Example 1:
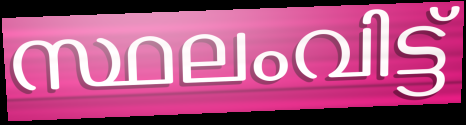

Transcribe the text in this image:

സ്ഥലംവിട്ട്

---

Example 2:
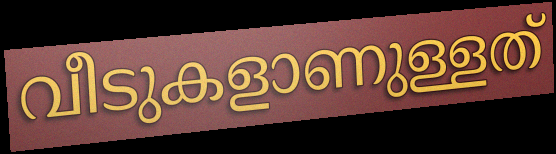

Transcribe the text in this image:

വീടുകളാണുള്ളത്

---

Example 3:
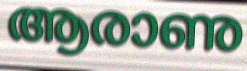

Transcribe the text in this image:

ആരാണു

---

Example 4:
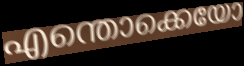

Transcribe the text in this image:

എന്തൊക്കെയോ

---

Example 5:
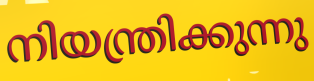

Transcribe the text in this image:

നിയന്ത്രിക്കുന്നു